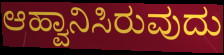
ಆಹ್ವಾನಿಸಿರುವುದು